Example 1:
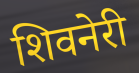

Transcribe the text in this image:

शिवनेरी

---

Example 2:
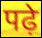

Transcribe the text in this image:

पढ़े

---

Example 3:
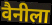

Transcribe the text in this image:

वैनीला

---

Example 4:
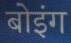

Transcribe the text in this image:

बोइंग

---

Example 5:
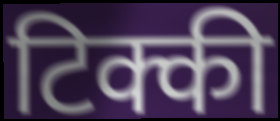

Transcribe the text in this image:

टिक्की